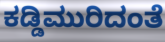
ಕಡ್ಡಿಮುರಿದಂತೆ